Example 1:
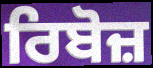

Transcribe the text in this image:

ਰਿਬੋਜ਼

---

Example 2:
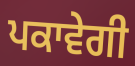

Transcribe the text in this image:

ਪਕਾਵੇਗੀ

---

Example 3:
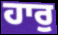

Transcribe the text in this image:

ਹਾਰੁ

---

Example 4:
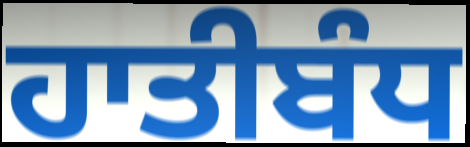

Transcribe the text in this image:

ਹਾਤੀਬੰਧ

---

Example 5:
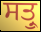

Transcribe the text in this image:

ਸਤ੍ਰੁ